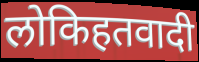
लोकिहतवादी